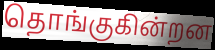
தொங்குகின்றன